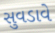
સુવડાવે